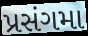
પ્રસંગમા